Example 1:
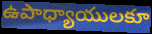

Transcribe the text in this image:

ఉపాధ్యాయులకూ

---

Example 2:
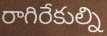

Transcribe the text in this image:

రాగిరేకుల్ని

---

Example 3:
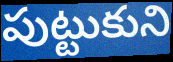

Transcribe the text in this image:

పుట్టుకుని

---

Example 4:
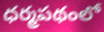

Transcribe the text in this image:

ధర్మపథంలో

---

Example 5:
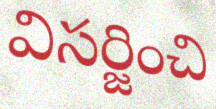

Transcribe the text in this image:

విసర్జించి